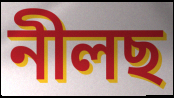
নীলছ